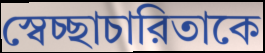
স্বেচ্ছাচারিতাকে